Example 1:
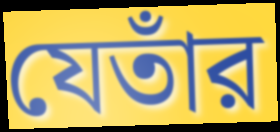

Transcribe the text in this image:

যেতাঁর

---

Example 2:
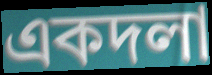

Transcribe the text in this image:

একদলা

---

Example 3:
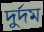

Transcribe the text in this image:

দুর্দম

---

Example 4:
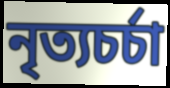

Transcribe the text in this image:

নৃত্যচর্চা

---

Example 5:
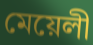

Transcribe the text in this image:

মেয়েলী